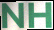
NH